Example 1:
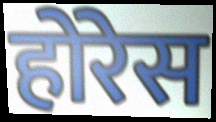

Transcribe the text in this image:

होरेस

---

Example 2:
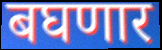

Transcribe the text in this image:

बघणार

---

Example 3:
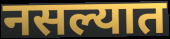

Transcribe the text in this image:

नसल्यात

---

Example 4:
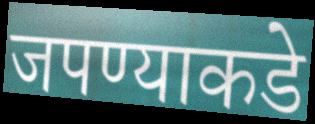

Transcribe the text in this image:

जपण्याकडे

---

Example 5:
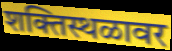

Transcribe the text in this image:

शक्तिस्थळावर